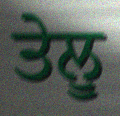
ਤੇਲੂ